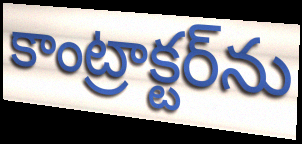
కాంట్రాక్టర్‌ను